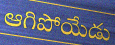
ఆగిపోయేడు